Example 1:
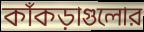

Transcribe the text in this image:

কাঁকড়াগুলোর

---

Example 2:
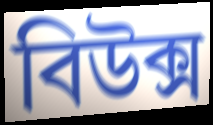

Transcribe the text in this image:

বিউক্স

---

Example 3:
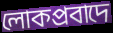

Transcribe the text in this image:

লোকপ্রবাদে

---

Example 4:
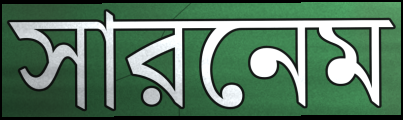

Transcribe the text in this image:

সারনেম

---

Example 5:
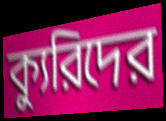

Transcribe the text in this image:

ক্যুরিদের